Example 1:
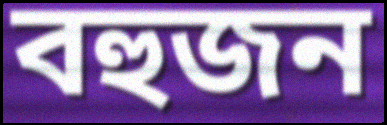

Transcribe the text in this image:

বহুজন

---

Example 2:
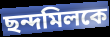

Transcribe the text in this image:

ছন্দমিলকে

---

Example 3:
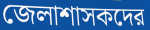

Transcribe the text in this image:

জেলাশাসকদের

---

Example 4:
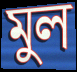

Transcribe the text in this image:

মুল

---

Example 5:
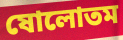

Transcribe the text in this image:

ষোলোতম